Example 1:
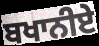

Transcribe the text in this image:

ਬਖਾਨੀਏ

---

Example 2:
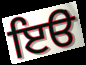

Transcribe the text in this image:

ਇੳਂ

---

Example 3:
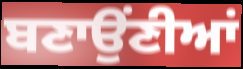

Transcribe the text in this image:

ਬਣਾਉਂਣੀਆਂ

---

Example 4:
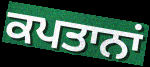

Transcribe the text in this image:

ਕਪਤਾਨਾਂ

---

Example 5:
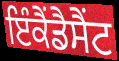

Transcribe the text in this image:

ਇੰਕੈਂਡੈਸੈਂਟ